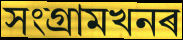
সংগ্ৰামখনৰ